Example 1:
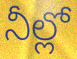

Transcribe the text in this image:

నీల్లో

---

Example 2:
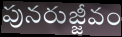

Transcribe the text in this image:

పునరుజ్జీవం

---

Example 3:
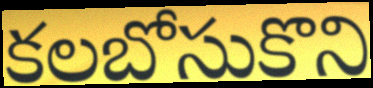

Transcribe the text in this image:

కలబోసుకొని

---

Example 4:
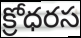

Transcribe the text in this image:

క్రోధరస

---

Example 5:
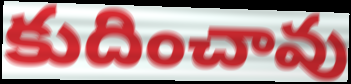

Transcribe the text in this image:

కుదించావు